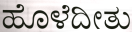
ಹೊಳೆದೀತು